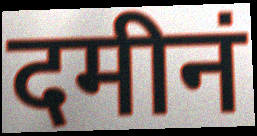
दमीनं